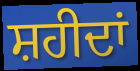
ਸ਼ਹੀਦਾਂ